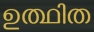
ഉത്ഥിത